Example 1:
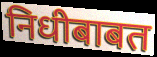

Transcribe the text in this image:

निधीबाबत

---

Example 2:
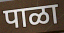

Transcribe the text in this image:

पाळा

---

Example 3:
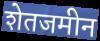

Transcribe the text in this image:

शेतजमीन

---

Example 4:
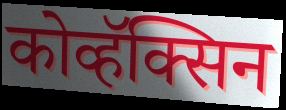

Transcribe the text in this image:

कोव्हॅक्सिन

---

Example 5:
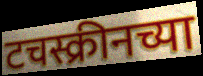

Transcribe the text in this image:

टचस्क्रीनच्या